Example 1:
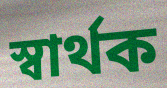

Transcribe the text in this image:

স্বাৰ্থক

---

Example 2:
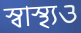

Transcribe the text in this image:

স্বাস্থ্যও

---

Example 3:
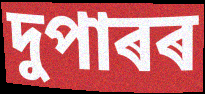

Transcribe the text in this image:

দুপাৰৰ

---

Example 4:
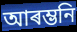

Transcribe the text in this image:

আৰম্ভনি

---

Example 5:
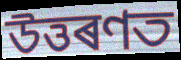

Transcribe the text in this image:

উত্তৰণত